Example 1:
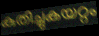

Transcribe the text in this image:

കുതിച്ചുകയറ്റം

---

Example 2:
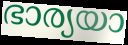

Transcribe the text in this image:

ഭാര്യയാ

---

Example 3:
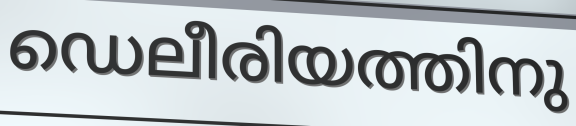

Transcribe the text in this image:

ഡെലീരിയത്തിനു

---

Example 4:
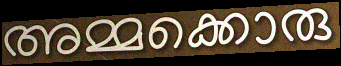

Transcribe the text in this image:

അമ്മക്കൊരു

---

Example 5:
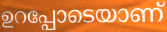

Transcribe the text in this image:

ഉറപ്പോടെയാണ്